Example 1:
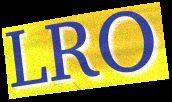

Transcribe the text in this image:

LRO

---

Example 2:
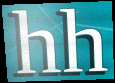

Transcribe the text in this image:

hh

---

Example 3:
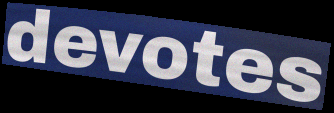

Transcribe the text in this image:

devotes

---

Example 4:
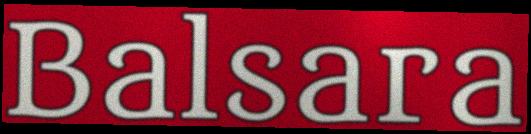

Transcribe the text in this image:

Balsara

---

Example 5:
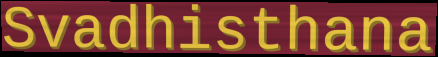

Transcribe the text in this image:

Svadhisthana